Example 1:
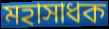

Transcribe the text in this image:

মহাসাধক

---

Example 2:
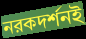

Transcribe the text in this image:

নরকদর্শনই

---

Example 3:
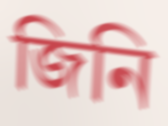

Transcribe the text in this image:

জিনি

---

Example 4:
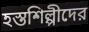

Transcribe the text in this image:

হস্তশিল্পীদের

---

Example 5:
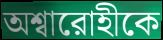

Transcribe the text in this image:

অশ্বারোহীকে